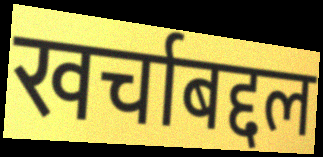
खर्चाबद्दल